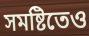
সমষ্টিতেও